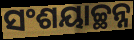
ସଂଶୟାଚ୍ଛନ୍ନ